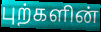
புற்களின்